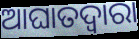
ଆଘାତଦ୍ୱାରା